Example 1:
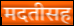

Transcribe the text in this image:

मदतीसह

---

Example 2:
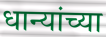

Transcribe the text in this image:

धान्यांच्या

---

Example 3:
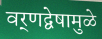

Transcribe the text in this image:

वर्णद्वेषामुळे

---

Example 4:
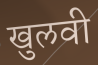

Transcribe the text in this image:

खुलवी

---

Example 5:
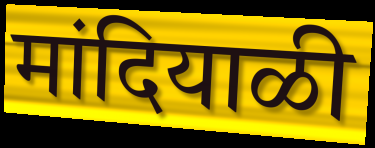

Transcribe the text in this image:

मांदियाळी